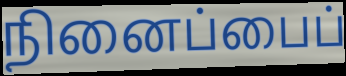
நினைப்பைப்